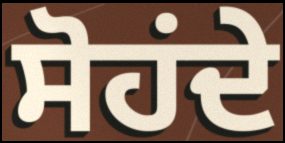
ਸੋਹਂਦੇ